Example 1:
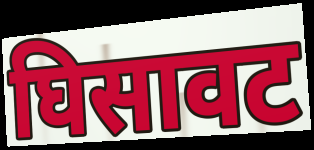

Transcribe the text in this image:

घिसावट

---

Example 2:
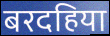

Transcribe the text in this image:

बरदहिया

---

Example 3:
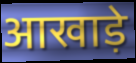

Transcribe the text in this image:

आखाड़े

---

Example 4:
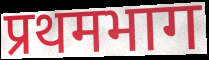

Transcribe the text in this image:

प्रथमभाग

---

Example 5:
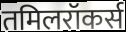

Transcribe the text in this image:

तमिलरॉकर्स